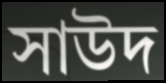
সাউদ